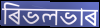
ৰিভলভাৰ